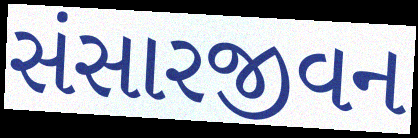
સંસારજીવન